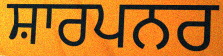
ਸ਼ਾਰਪਨਰ